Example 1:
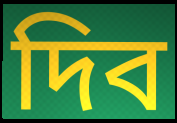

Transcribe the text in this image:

দিব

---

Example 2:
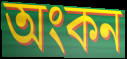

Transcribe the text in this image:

অংকন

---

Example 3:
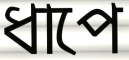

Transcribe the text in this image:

ধাপে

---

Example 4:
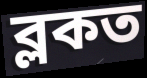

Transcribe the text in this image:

ব্লকত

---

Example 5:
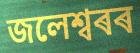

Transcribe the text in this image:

জলেশ্বৰৰ